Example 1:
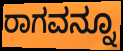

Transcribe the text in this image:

ರಾಗವನ್ನೂ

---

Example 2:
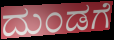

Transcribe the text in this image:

ದುಂಡಗೆ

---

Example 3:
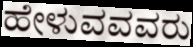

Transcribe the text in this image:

ಹೇಳುವವವರು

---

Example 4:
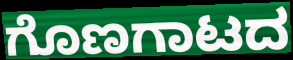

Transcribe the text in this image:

ಗೊಣಗಾಟದ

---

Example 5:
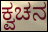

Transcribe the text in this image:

ಕ್ವಚನ